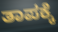
ತಾಪಕ್ಕೆ